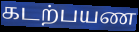
கடற்பயண